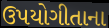
ઉપયોગીતાના